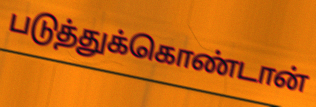
படுத்துக்கொண்டான்